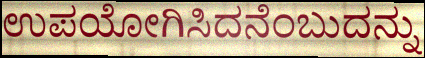
ಉಪಯೋಗಿಸಿದನೆಂಬುದನ್ನು